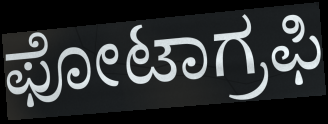
ಫೋಟಾಗ್ರಫಿ